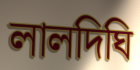
লালদিঘি